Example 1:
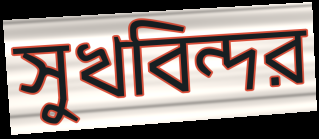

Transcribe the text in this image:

সুখবিন্দর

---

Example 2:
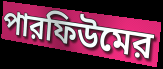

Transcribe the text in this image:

পারফিউমের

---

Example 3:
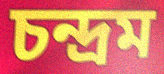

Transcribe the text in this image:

চন্দ্রম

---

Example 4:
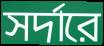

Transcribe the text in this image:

সর্দারে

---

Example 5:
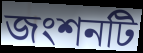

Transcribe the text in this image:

জংশনটি